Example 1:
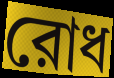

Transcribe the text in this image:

রোধ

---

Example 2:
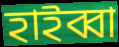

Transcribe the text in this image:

হাইব্বা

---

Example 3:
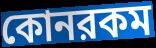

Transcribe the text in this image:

কোনরকম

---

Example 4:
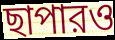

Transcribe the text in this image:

ছাপারও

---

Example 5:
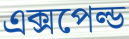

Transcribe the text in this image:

এক্সপেল্ড